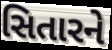
સિતારને